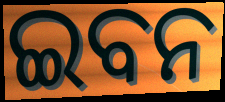
ଇବନ